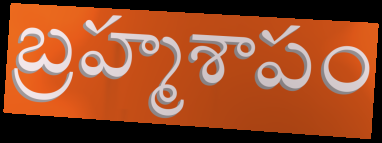
బ్రహ్మశాపం